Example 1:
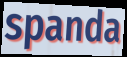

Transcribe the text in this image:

spanda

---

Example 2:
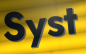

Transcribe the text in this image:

Syst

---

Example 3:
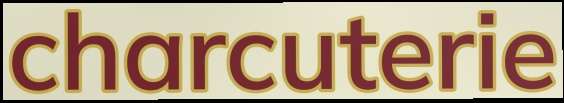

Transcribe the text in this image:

charcuterie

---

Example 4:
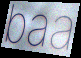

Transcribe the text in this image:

baa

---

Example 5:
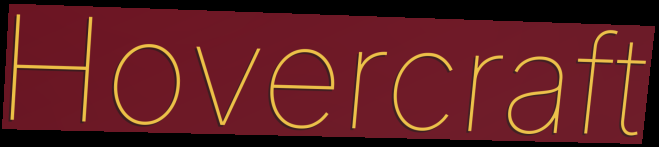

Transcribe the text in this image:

Hovercraft